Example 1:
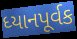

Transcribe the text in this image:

ધ્યાનપૂર્વક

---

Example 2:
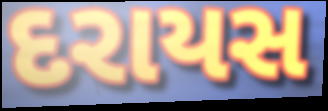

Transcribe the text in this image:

દરાયસ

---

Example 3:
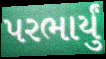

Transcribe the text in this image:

પરભાર્યું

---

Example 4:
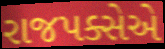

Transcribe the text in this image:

રાજપક્સેએ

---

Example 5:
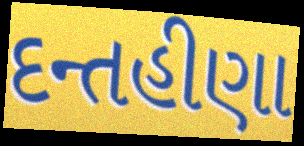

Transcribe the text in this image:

દન્તહીણા